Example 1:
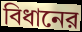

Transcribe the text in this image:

বিধানের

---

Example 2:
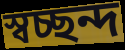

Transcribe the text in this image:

স্বচ্ছন্দ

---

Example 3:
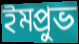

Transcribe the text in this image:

ইমপ্রুভ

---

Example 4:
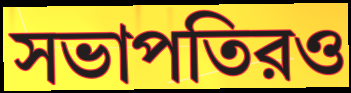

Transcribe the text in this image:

সভাপতিরও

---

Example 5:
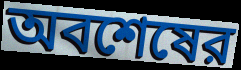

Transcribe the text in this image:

অবশেষের